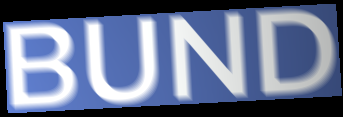
BUND